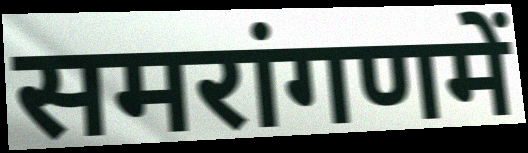
समरांगणमें